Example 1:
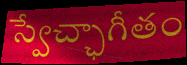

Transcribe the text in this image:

స్వేచ్ఛాగీతం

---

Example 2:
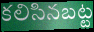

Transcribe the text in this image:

కలిసినబట్ట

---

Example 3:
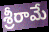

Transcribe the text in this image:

శ్రీరామే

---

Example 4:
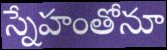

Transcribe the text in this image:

స్నేహంతోనూ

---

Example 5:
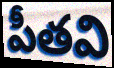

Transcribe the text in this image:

పీతవి